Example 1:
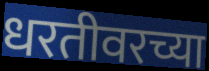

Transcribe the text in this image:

धरतीवरच्या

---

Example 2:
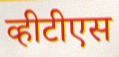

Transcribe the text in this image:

व्हीटीएस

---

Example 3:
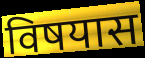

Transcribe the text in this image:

विषयास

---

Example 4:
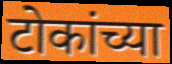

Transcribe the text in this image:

टोकांच्या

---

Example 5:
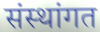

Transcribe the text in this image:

संस्थांगत